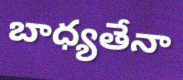
బాధ్యతేనా